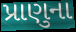
પ્રાણુના